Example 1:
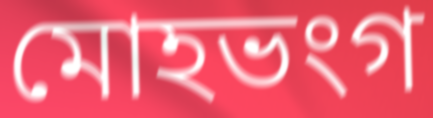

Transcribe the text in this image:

মোহভংগ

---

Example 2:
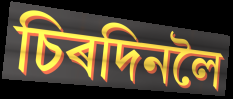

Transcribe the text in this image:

চিৰদিনলৈ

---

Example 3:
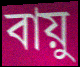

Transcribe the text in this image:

বায়ু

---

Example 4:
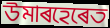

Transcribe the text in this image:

উমাৰহেৰেত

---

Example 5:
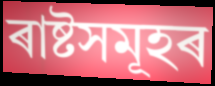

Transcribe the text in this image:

ৰাষ্টসমূহৰ